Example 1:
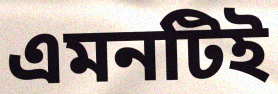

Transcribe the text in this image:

এমনটিই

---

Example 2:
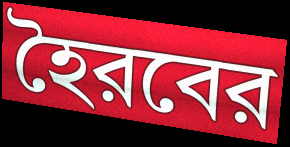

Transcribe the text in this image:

হৈরবের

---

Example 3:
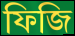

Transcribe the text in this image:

ফিজি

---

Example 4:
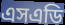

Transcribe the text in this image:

এসএডি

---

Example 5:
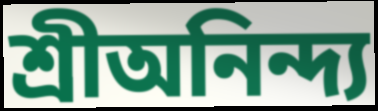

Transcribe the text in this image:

শ্রীঅনিন্দ্য